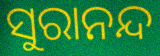
ସୁରାନନ୍ଦ